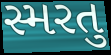
સ્મરતુ